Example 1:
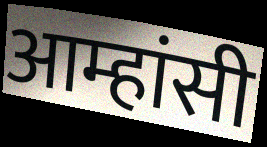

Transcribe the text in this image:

आम्हांसी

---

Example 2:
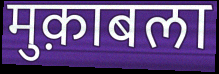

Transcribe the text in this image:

मुक़ाबला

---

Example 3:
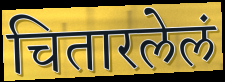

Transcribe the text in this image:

चितारलेलं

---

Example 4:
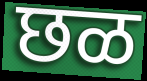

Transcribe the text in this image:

छळ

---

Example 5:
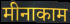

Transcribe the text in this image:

मीनाकाम